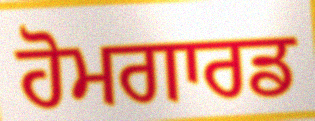
ਹੋਮਗਾਰਡ